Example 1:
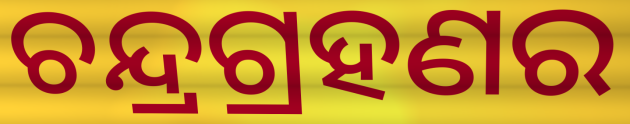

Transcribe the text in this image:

ଚନ୍ଦ୍ରଗ୍ରହଣର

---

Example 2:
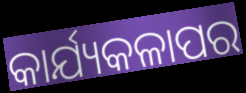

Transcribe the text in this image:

କାର୍ଯ୍ୟକଳାପର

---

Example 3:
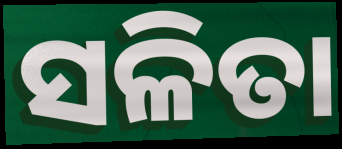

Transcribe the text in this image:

ସଳିତା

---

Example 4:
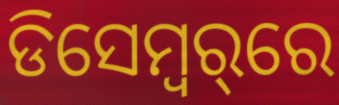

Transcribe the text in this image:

ଡିସେମ୍ବର୍‌ରେ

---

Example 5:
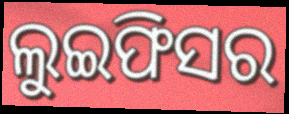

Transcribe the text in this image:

ଲୁଇଫିସର